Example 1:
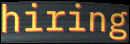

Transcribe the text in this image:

hiring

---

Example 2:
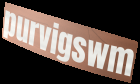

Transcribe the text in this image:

purvigswm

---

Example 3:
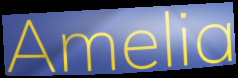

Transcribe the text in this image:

Amelia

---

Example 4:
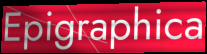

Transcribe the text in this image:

Epigraphica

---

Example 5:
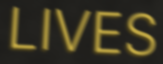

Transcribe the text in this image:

LIVES